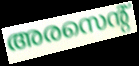
അരസെന്റ്